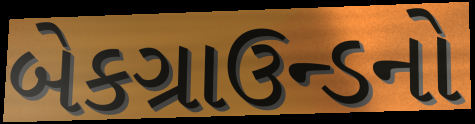
બેકગ્રાઉન્ડનો